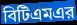
বিটিএমএর